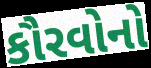
કૌરવોનો